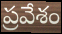
ప్రవేశం